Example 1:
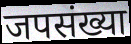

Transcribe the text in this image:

जपसंख्या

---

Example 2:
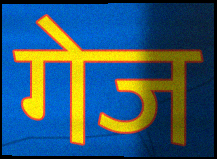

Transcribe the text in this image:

गेज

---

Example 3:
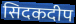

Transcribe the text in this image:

सिदकदीप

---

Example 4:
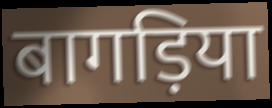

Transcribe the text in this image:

बागड़िया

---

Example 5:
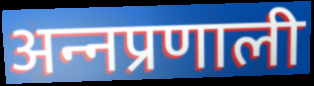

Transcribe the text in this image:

अन्नप्रणाली